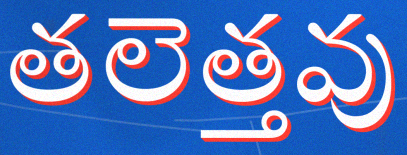
తలెత్తవు